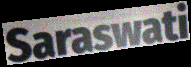
Saraswati